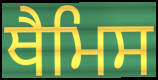
ਥੈਮਿਸ